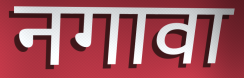
नगावा